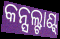
କନ୍ସଲ୍ଟାଣ୍ଟ୍